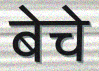
बेचे